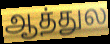
ஆத்துல